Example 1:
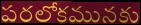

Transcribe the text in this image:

పరలోకమునకు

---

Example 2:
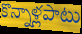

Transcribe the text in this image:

కొన్నాళ్లపాటు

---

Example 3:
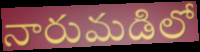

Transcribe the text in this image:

నారుమడిలో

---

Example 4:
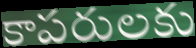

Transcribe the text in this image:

కాపరులకు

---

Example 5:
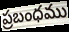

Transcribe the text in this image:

ప్రబంధము